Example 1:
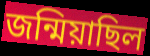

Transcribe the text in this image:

জন্মিয়াছিল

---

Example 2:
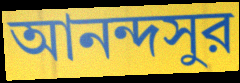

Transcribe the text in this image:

আনন্দসুর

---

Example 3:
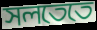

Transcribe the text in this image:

সলতেতে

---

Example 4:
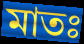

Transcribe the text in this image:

মাতঃ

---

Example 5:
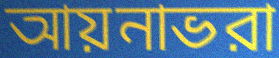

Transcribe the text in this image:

আয়নাভরা